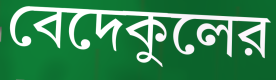
বেদেকুলের